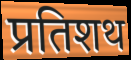
प्रतिशथ